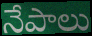
నేపాలు